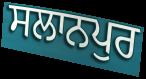
ਸਲਾਨਪੁਰ